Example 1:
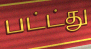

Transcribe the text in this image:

பட்ட்து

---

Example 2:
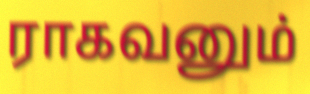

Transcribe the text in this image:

ராகவனும்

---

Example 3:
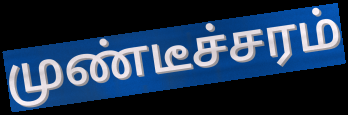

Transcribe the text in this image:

முண்டீச்சரம்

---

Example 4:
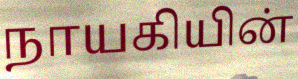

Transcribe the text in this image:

நாயகியின்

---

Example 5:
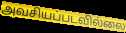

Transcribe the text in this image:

அவசியப்படவில்லை